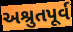
અશ્રુતપૂર્વ